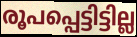
രൂപപ്പെട്ടിട്ടില്ല